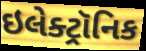
ઇલેક્ટ્રૉનિક